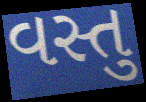
વસ્તુ